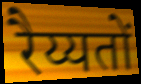
रैय्यतों